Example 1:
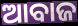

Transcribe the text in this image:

ଆବାଜ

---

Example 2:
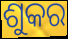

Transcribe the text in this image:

ଶୁକର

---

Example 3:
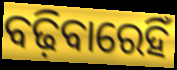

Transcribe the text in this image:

ବଢ଼ିବାରେହିଁ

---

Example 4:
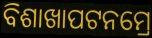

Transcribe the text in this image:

ବିଶାଖାପଟନମ୍ରେ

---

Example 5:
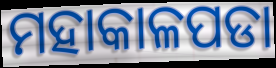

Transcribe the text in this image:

ମହାକାଳପଡା